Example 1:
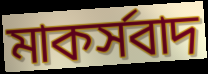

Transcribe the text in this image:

মাকর্সবাদ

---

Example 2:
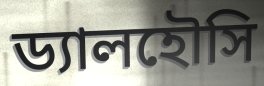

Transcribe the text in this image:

ড্যালহৌসি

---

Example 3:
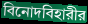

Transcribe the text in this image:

বিনোদবিহারীর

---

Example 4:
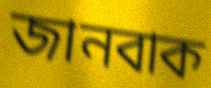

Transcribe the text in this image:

জানবাক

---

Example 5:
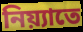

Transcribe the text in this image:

নিয়্যাতে